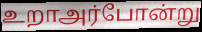
உறாஅர்போன்று